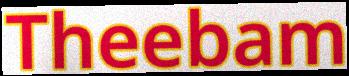
Theebam